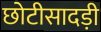
छोटीसादड़ी